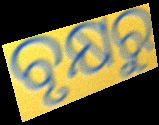
ବୃକ୍ଷରୁ